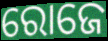
ରୋଜେ